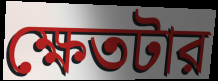
ক্ষেতটার